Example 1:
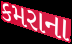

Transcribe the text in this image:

કમરાના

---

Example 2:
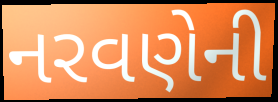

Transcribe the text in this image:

નરવણેની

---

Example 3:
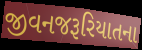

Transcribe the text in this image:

જીવનજરૂરિયાતના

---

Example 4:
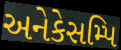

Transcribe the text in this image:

અનેકેસમ્પિ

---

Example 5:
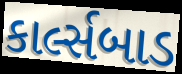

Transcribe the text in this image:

કાર્લ્સબાડ